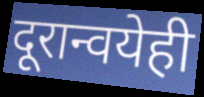
दूरान्वयेही